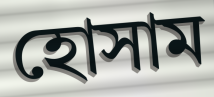
হোসাম